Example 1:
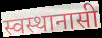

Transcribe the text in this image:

स्वस्थानासी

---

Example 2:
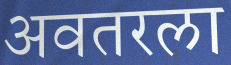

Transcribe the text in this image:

अवतरला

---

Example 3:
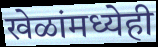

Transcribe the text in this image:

खेळांमध्येही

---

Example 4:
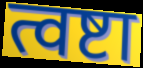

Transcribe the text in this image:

त्वष्टा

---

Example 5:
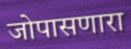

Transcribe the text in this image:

जोपासणारा